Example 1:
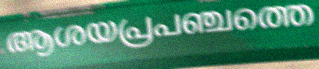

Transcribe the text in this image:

ആശയപ്രപഞ്ചത്തെ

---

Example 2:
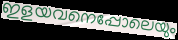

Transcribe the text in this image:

ഇളയവനെപ്പോലെയും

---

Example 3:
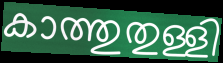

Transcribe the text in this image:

കാത്തുതുള്ളി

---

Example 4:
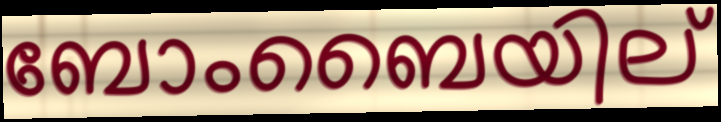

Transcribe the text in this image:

ബോംബൈയില്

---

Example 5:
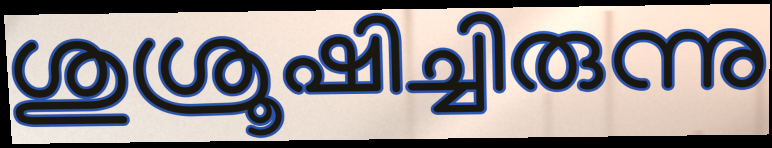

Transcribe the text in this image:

ശുശ്രൂഷിച്ചിരുന്നു